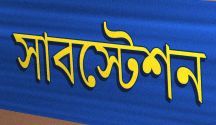
সাবস্টেশন